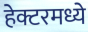
हेक्टरमध्ये